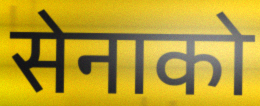
सेनाको